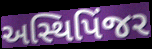
અસ્થિપિંજર